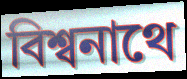
বিশ্বনাথে